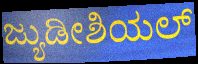
ಜ್ಯುಡೀಶಿಯಲ್